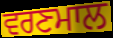
ਵਰਣਮਾਲ